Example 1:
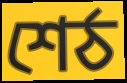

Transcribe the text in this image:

শেঠ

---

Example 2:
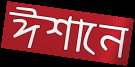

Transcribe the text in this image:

ঈশানে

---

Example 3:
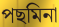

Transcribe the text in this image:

পছমিনা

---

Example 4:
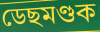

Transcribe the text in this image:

ডেছমণ্ডক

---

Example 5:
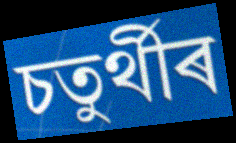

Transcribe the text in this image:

চতুৰ্থীৰ